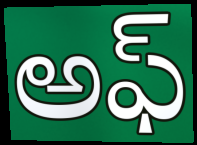
అఫ్